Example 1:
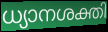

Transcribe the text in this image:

ധ്യാനശക്തി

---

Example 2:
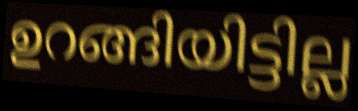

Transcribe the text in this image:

ഉറങ്ങിയിട്ടില്ല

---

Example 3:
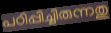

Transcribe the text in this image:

പഠിപ്പിച്ചിരുന്നതു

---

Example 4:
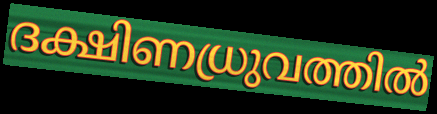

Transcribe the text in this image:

ദക്ഷിണധ്രുവത്തിൽ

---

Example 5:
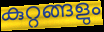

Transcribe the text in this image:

കുറ്റങ്ങളും